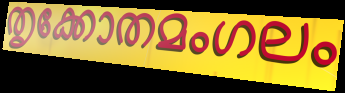
തൃക്കോതമംഗലം